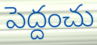
పెద్దంచు